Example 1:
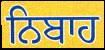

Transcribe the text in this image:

ਨਿਬਾਹ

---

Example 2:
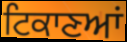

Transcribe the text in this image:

ਟਿਕਾਣਆਂ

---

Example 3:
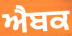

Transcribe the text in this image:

ਐਬਕ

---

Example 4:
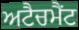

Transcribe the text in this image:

ਅਟੈਚਮੈਂਟ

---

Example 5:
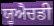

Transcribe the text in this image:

ਯੂਐਚਡੀ